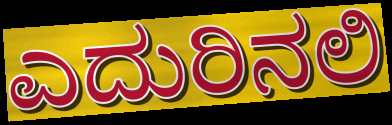
ಎದುರಿನಲಿ